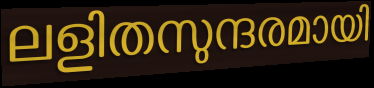
ലളിതസുന്ദരമായി